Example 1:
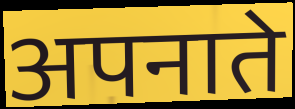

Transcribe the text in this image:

अपनाते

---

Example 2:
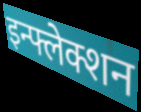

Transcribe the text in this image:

इन्फ्लेक्शन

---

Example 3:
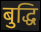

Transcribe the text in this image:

बुद्धि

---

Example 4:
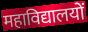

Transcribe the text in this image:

महाविद्यालयों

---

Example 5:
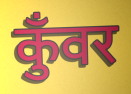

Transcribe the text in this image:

कुँवर